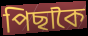
পিছাকৈ